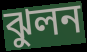
ঝুলন